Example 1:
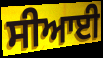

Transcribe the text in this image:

ਸੀਆਈ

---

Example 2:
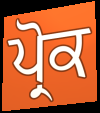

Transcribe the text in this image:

ਪ੍ਰੋਕ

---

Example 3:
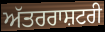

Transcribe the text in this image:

ਅੱਤਰਰਾਸ਼ਟਰੀ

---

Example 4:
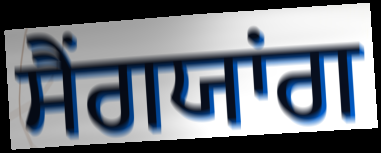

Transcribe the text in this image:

ਸੈਂਗਯਾਂਗ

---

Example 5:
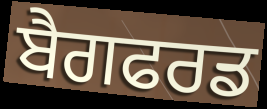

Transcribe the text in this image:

ਬੈਗਫਰਡ